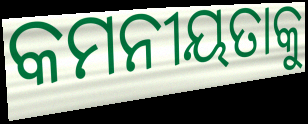
କମନୀୟତାକୁ